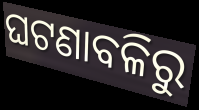
ଘଟଣାବଳିରୁ